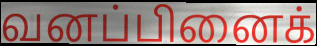
வனப்பினைக்